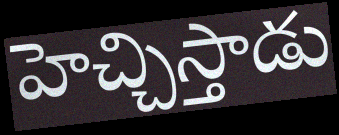
హెచ్చిస్తాడు